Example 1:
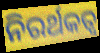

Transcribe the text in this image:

ନିରର୍ଥକତ୍ୱ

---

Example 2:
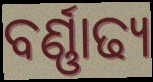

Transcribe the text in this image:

ବର୍ଣ୍ଣାଢ୍ୟ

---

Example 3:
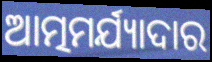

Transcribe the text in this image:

ଆତ୍ମମର୍ଯ୍ୟାଦାର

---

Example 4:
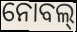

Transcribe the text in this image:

ନୋବଲ୍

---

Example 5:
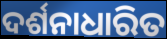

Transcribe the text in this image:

ଦର୍ଶନାଧାରିତ